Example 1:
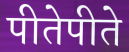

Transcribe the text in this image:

पीतेपीते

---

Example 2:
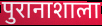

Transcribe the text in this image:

पुरानाशाला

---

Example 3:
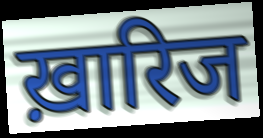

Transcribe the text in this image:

ख़ारिज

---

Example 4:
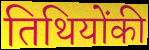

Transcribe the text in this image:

तिथियोंकी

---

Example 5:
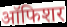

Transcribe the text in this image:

ऑफिशर